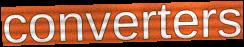
converters